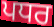
ਪਧਰ